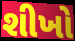
શીખો